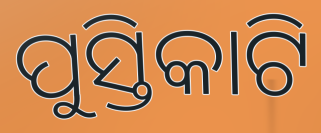
ପୁସ୍ତିକାଟି